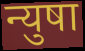
न्युषा